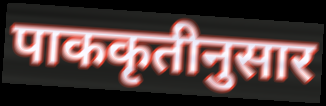
पाककृतीनुसार